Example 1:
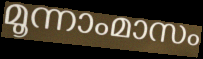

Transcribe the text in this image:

മൂന്നാംമാസം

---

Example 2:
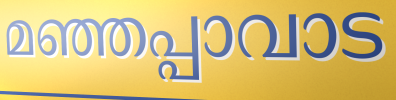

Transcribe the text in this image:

മഞ്ഞപ്പാവാട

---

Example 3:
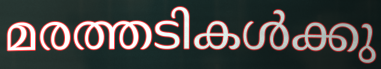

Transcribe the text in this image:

മരത്തടികൾക്കു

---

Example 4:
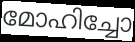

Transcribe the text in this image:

മോഹിച്ചോ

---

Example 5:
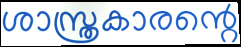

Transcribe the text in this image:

ശാസ്ത്രകാരന്റെ